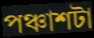
পঞ্চাশটা